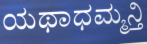
ಯಥಾಧಮ್ಮನ್ತಿ